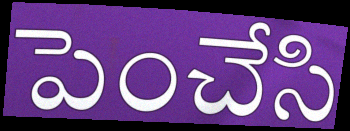
పెంచేసి